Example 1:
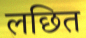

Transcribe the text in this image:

लछित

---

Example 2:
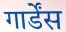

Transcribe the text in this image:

गार्डेंस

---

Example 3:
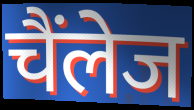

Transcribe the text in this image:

चैंलेज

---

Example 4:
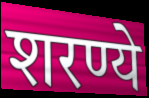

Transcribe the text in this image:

शरण्ये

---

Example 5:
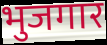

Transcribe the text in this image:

भुजगार